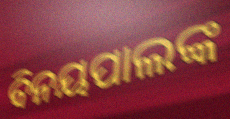
ବିନୟପାଲଙ୍କ